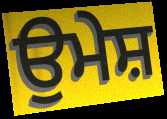
ਉਮੇਸ਼